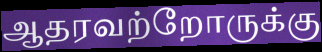
ஆதரவற்றோருக்கு